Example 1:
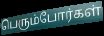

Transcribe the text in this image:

பெரும்போர்கள்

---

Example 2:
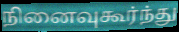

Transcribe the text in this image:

நினைவுகூர்ந்து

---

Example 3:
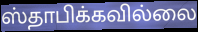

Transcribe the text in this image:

ஸ்தாபிக்கவில்லை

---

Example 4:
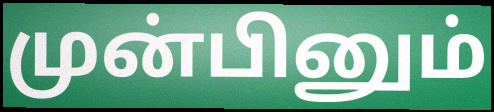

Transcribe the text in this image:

முன்பினும்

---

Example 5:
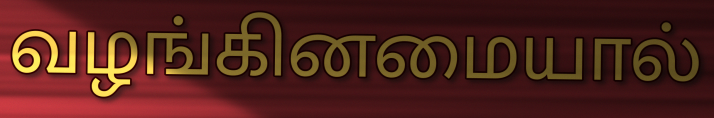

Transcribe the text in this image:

வழங்கினமையால்